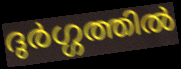
ദുർഗ്ഗത്തിൽ